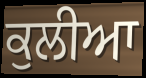
ਕੁਲੀਆ